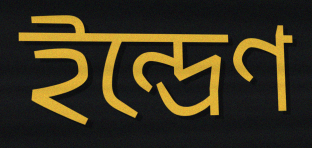
ইন্দ্রেণ